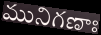
మునిగణాః